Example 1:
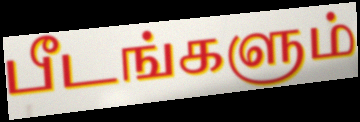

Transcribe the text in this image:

பீடங்களும்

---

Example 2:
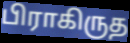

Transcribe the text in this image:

பிராகிருத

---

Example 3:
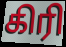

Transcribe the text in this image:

கிரி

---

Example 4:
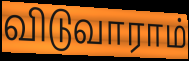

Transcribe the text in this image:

விடுவாராம்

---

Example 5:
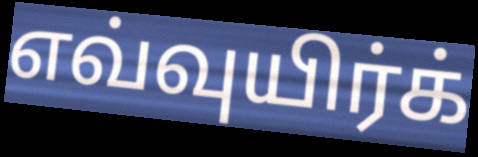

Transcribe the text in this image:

எவ்வுயிர்க்